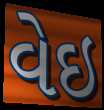
વેઇ